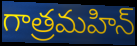
గాత్రమహిన్